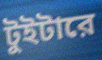
টুইটারে